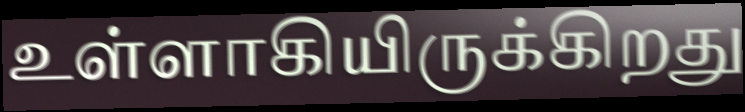
உள்ளாகியிருக்கிறது